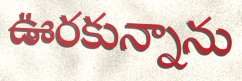
ఊరకున్నాను